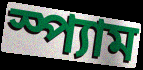
স্প্যাম